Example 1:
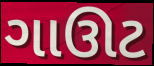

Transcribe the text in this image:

ગાઊટ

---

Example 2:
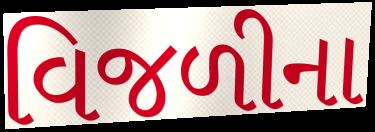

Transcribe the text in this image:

વિજળીના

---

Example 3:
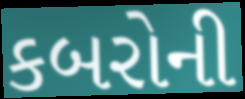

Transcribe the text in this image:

કબરોની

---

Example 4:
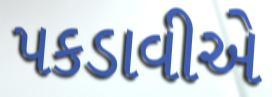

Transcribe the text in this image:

પકડાવીએ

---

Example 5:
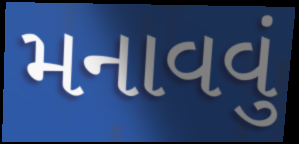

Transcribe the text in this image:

મનાવવું